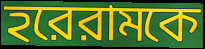
হরেরামকে